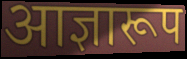
आज्ञारूप